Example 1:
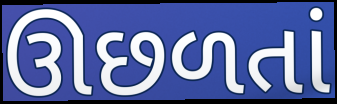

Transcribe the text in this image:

ઊછળતાં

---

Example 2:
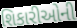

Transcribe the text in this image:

શિકારીઓની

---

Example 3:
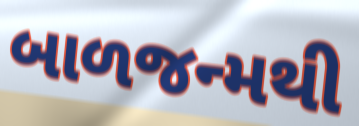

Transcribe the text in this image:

બાળજન્મથી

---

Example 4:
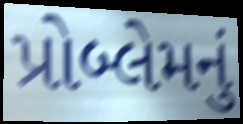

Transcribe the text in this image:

પ્રોબ્લેમનું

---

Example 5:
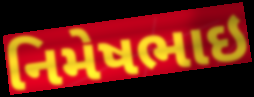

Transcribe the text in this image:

નિમેષભાઇ